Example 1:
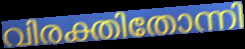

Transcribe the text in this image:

വിരക്തിതോന്നി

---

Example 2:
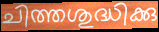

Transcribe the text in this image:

ചിത്തശുദ്ധിക്കു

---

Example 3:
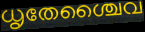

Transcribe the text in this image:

ധൃതേശ്ചൈവ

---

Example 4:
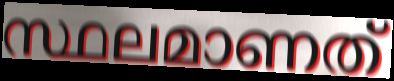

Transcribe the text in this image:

സ്ഥലമാണത്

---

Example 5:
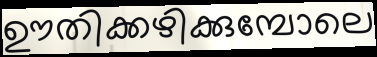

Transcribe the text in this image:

ഊതിക്കഴിക്കുമ്പോലെ